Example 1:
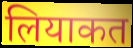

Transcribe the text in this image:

लियाकत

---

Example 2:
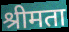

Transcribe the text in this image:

श्रीमता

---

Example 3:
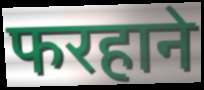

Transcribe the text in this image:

फरहाने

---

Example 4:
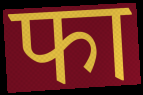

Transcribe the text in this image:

फा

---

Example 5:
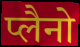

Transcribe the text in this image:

प्लैनो